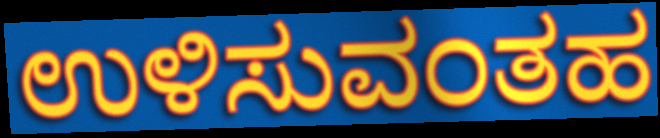
ಉಳಿಸುವಂತಹ